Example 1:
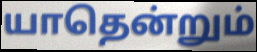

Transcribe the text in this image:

யாதென்றும்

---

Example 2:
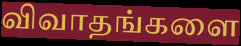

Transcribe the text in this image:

விவாதங்களை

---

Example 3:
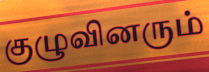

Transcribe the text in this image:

குழுவினரும்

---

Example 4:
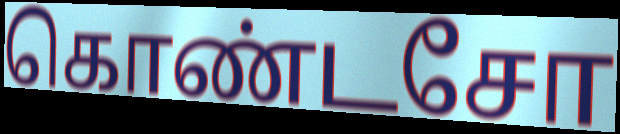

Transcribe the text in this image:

கொண்டசோ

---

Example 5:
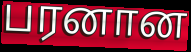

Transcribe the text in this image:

பரனான